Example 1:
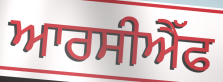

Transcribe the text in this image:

ਆਰਸੀਐੱਫ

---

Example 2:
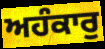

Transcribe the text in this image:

ਅਹੰਕਾਰੁ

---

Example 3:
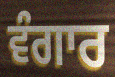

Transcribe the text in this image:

ਵੰਗਾਰ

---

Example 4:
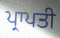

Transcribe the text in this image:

ਪ੍ਰਾਪਤੀ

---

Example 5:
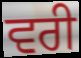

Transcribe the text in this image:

ਵਰੀ